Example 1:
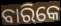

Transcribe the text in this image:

ବାରିକେ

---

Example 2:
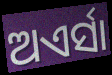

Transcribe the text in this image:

ଅଏର୍ସା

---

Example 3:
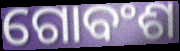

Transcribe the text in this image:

ଗୋବଂଶ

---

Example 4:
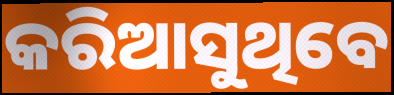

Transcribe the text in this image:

କରିଆସୁଥିବେ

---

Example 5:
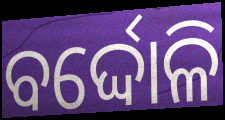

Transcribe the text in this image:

ବର୍ଦ୍ଦୋଳି